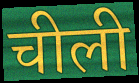
चीली